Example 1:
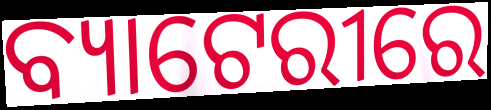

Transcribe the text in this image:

ବ୍ୟାଟେରୀରେ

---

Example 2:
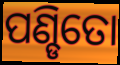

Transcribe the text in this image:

ପଣ୍ଡିତୋ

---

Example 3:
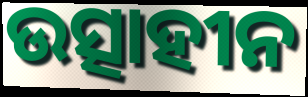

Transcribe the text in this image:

ଉତ୍ସାହୀନ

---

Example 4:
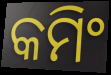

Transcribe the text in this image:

କମିଂ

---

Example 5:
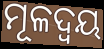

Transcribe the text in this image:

ମୂଳଦ୍ଵୟ